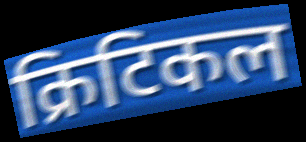
क्रिटिकल